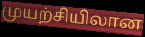
முயற்சியிலான